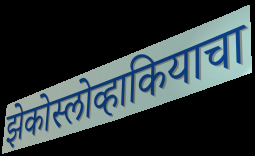
झेकोस्लोव्हाकियाचा